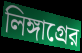
লিঙ্গাগ্রের